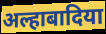
अल्हाबादिया